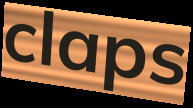
claps